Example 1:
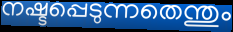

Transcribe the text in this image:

നഷ്ടപ്പെടുന്നതെന്തും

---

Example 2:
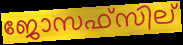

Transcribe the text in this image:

ജോസഫ്സില്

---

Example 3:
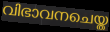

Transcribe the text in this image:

വിഭാവനചെയ്ത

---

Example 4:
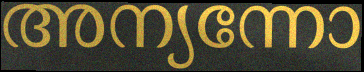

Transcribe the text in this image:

അന്യന്നോ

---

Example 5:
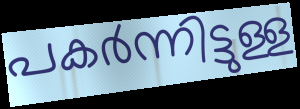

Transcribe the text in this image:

പകർന്നിട്ടുള്ള